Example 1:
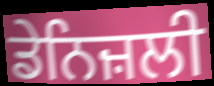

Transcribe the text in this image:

ਡੇਨਿਜ਼ਲੀ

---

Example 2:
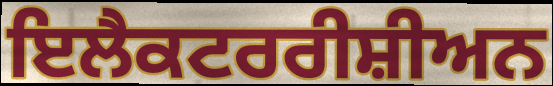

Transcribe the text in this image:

ਇਲੈਕਟਰਰੀਸ਼ੀਅਨ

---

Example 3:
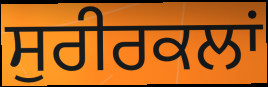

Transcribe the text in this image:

ਸੁਰੀਰਕਲਾਂ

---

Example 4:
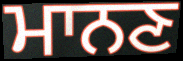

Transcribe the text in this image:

ਮਾਨਣ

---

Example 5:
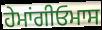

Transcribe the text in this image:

ਹੇਮਾਂਗੀਓਮਾਸ